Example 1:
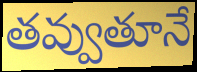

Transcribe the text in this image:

తవ్వుతూనే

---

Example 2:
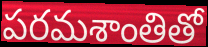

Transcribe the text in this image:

పరమశాంతితో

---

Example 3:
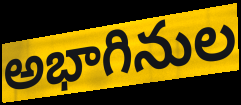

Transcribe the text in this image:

అభాగినుల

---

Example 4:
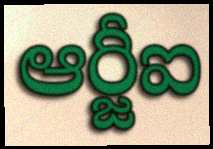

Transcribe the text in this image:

ఆర్జీఐ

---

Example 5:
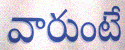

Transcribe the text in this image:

వారుంటే